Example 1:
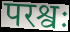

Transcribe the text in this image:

परश्वः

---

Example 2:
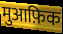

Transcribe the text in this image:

मुआफ़िक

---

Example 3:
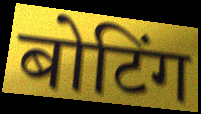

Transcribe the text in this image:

बोटिंग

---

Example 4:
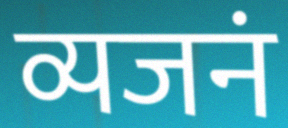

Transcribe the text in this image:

व्यजनं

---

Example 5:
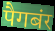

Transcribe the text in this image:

पैगबंर